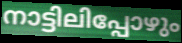
നാട്ടിലിപ്പോഴും